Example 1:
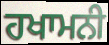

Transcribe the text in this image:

ਹਖਾਮਨੀ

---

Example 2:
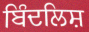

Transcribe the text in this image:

ਬਿੰਦਲਿਸ਼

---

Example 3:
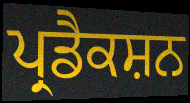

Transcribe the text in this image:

ਪ੍ਰਡੈਕਸ਼ਨ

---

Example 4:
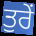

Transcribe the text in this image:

ਤੁਰੇਂ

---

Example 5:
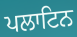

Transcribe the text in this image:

ਪਲਾਟਿਨ